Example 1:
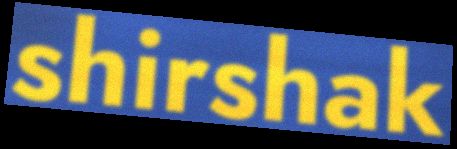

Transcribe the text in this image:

shirshak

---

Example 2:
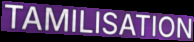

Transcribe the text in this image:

TAMILISATION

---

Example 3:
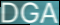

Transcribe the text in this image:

DGA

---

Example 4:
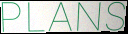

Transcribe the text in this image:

PLANS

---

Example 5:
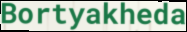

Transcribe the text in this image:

Bortyakheda